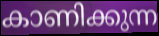
കാണിക്കുന്ന